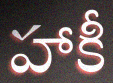
హాకీ